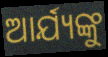
ଆର୍ଯ୍ୟଙ୍କୁ